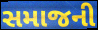
સમાજની